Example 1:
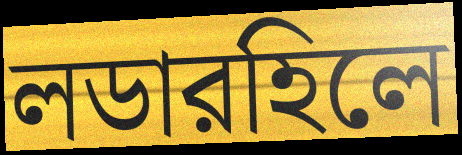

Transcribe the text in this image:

লডারহিলে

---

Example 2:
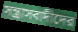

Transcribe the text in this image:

সন্ত্রাসবাদীদের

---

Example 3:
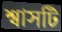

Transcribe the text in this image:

শ্বাসটি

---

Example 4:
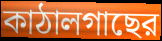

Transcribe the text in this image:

কাঠালগাছের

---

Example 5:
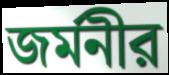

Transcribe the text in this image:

জর্মনীর